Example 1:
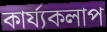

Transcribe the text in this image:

কার্য্যকলাপ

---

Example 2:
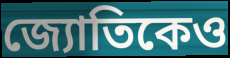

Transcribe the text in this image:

জ্যোতিকেও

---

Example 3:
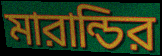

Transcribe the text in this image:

মারান্ডির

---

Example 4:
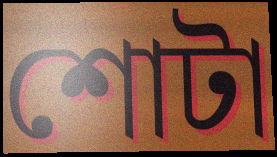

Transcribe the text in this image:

শোটা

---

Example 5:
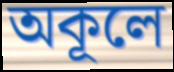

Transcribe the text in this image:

অকূলে